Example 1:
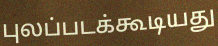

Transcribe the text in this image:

புலப்படக்கூடியது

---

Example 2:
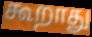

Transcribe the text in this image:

கூறாது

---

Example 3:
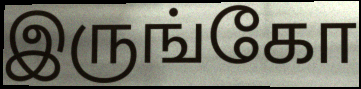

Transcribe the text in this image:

இருங்கோ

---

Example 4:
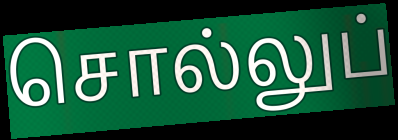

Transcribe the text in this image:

சொல்லுப்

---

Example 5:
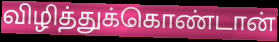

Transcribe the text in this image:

விழித்துக்கொண்டான்